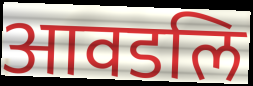
आवडलि